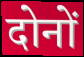
दोनों